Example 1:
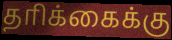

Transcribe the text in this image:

தரிக்கைக்கு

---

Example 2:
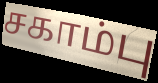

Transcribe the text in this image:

சகாம்பு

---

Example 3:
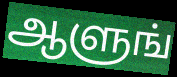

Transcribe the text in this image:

ஆளுங்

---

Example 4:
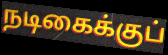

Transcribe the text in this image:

நடிகைக்குப்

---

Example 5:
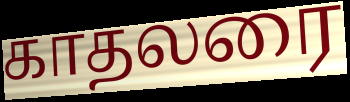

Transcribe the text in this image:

காதலரை